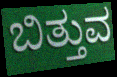
ಬಿತ್ತುವ